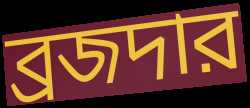
ব্রজদার